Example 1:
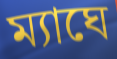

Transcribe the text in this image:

ম্যাঘে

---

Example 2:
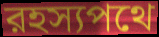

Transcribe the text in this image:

রহস্যপথে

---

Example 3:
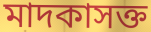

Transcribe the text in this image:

মাদকাসক্ত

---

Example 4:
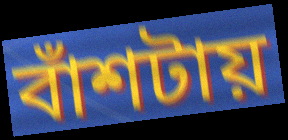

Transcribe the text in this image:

বাঁশটায়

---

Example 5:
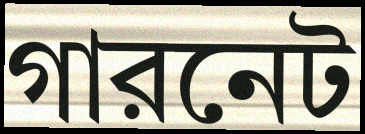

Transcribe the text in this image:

গারনেট